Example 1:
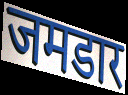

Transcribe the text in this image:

जमडार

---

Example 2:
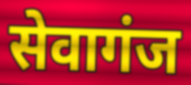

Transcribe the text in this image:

सेवागंज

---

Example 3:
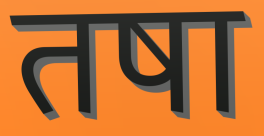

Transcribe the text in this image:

तषा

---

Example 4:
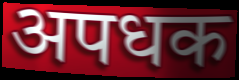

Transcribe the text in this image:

अपधक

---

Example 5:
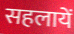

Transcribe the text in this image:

सहलायें